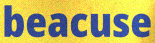
beacuse